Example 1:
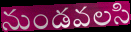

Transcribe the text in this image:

నుండవలసి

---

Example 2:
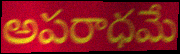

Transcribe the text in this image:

అపరాధమే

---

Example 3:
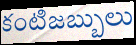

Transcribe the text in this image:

కంటిజబ్బులు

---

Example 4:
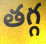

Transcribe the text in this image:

తగ్గ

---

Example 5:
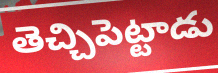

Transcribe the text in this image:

తెచ్చిపెట్టాడు